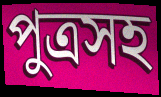
পুত্রসহ